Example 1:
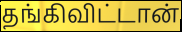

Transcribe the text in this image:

தங்கிவிட்டான்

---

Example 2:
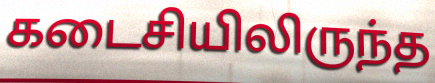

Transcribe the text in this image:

கடைசியிலிருந்த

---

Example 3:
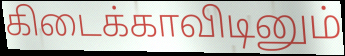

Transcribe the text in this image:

கிடைக்காவிடினும்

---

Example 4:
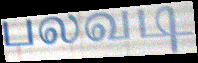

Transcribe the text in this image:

பலவடி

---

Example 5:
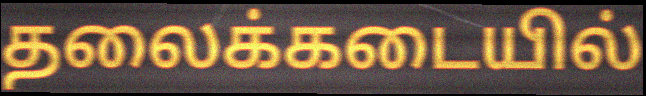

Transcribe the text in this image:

தலைக்கடையில்